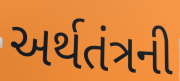
અર્થતંત્રની